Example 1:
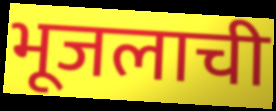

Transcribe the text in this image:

भूजलाची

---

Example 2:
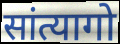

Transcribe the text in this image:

सांत्यागो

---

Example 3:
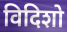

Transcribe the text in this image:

विदिशो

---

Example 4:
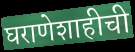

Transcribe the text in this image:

घराणेशाहीची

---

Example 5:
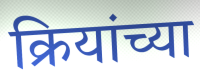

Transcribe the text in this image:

क्रियांच्या